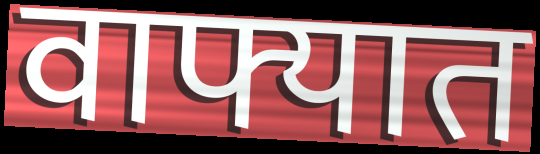
वाफ्यात